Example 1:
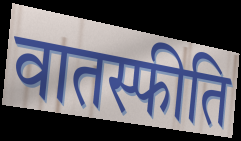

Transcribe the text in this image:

वातस्फीति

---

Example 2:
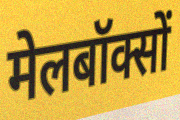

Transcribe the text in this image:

मेलबॉक्सों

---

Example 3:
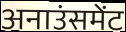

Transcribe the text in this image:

अनाउंसमेंट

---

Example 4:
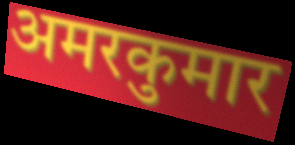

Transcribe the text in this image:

अमरकुमार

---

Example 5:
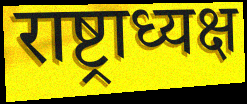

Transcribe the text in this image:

राष्ट्राध्यक्ष